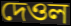
দেওল